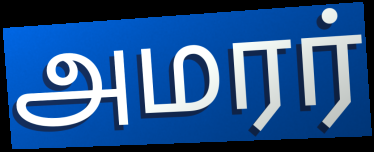
அமரர்